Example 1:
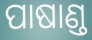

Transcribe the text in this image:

ପାଷାଣ୍ଡ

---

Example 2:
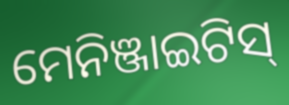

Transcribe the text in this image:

ମେନିଞ୍ଜାଇଟିସ୍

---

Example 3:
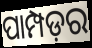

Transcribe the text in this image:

ପାମ୍ପଡ଼ର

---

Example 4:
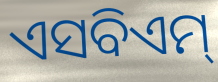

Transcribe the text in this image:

ଏସବିଏମ୍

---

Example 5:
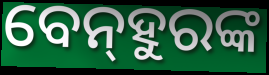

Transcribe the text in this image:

ବେନ୍‍ହୁରଙ୍କ